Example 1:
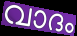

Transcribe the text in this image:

വാദം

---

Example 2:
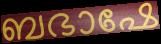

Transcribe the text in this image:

ബഭാഷേ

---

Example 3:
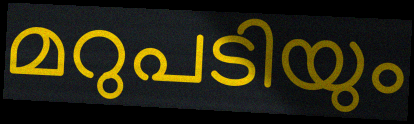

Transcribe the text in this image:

മറുപടിയും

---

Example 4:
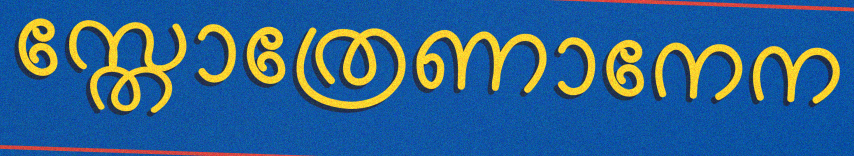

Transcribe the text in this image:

സ്തോത്രേണാനേന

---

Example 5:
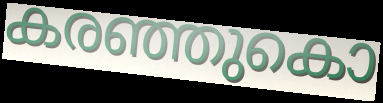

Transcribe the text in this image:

കരഞ്ഞുകൊ